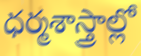
ధర్మశాస్త్రాల్లో